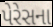
પેરેસના